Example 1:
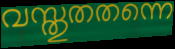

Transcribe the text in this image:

വസ്തുതതന്നെ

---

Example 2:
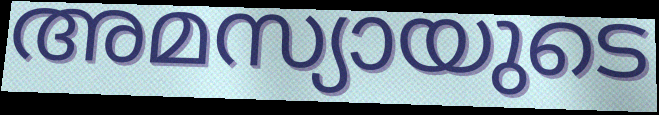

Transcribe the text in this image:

അമസ്യായുടെ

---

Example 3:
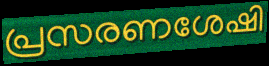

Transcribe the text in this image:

പ്രസരണശേഷി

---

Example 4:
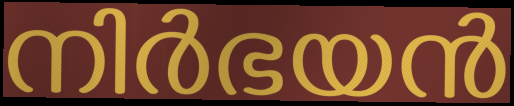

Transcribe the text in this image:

നിർഭയൻ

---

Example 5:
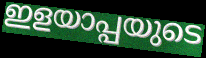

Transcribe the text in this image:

ഇളയാപ്പയുടെ